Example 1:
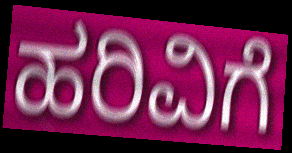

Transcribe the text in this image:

ಹರಿವಿಗೆ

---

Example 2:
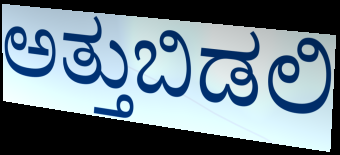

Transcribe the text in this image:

ಅತ್ತುಬಿಡಲಿ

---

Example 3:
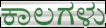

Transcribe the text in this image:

ಕಾಲಗಳು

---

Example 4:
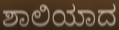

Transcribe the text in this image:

ಶಾಲಿಯಾದ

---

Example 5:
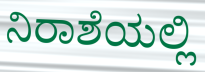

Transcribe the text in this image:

ನಿರಾಶೆಯಲ್ಲಿ